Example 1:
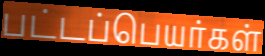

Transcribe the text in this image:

பட்டப்பெயர்கள்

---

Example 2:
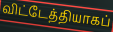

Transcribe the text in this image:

விட்டேத்தியாகப்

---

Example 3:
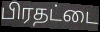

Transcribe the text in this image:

பிரதட்டை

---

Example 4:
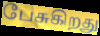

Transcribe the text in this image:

பேசுகிறது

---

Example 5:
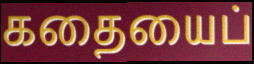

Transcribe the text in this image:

கதையைப்